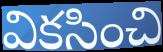
వికసించి